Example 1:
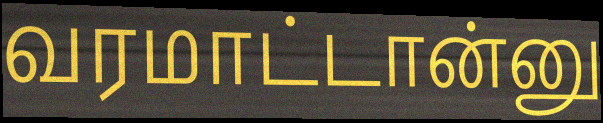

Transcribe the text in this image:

வரமாட்டான்னு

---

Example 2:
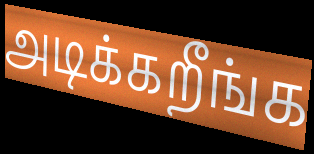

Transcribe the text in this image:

அடிக்கறீங்க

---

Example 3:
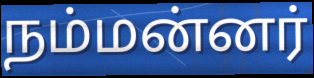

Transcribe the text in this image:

நம்மன்னர்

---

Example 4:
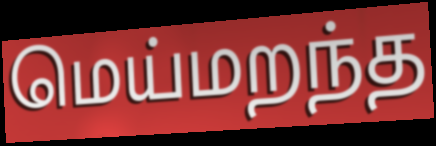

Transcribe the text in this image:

மெய்மறந்த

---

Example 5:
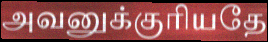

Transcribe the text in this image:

அவனுக்குரியதே